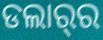
ଡଲାର୍‌ର